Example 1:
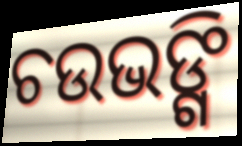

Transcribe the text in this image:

ଚଉଭଙ୍ଗି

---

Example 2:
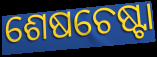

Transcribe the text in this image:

ଶେଷଚେଷ୍ଟା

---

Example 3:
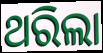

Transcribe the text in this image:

ଥରିଲା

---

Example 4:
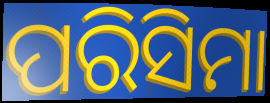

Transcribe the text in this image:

ପରିସିମା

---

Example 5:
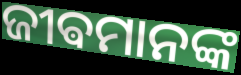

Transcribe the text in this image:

ଜୀଵମାନଙ୍କ